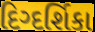
દિગ્દર્શિકા